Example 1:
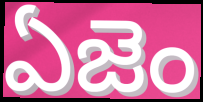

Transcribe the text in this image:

ఏజెం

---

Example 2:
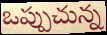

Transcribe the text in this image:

ఒప్పుచున్న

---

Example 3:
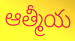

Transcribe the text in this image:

ఆత్మీయ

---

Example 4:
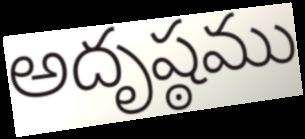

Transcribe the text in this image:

అదృష్ఠము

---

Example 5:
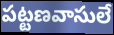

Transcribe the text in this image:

పట్టణవాసులే